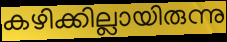
കഴിക്കില്ലായിരുന്നു